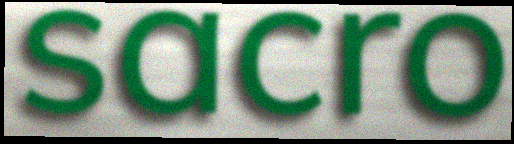
sacro